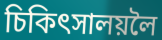
চিকিৎসালয়লৈ